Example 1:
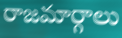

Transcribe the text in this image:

రాజమార్గాలు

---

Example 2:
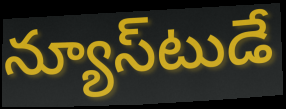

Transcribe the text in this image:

న్యూస్‌టుడే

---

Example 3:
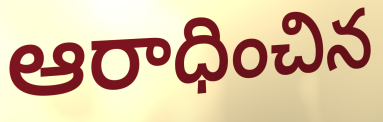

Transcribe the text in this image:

ఆరాధించిన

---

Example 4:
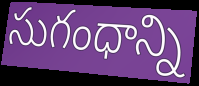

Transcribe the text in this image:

సుగంధాన్ని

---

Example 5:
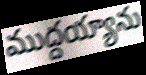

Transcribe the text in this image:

ముద్దయ్యాను